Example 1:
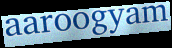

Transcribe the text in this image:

aaroogyam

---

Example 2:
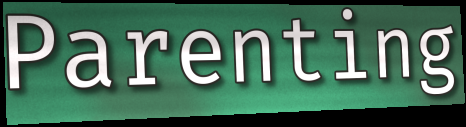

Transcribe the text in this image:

Parenting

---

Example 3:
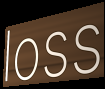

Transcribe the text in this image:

loss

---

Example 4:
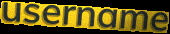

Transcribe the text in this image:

username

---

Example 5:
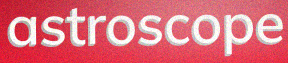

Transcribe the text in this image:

astroscope